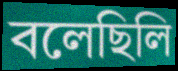
বলেছিলি